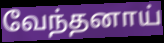
வேந்தனாய்